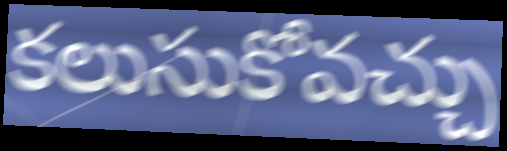
కలుసుకోవచ్చు